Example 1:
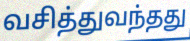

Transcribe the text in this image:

வசித்துவந்தது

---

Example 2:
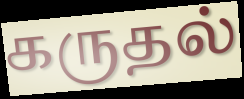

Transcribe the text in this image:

கருதல்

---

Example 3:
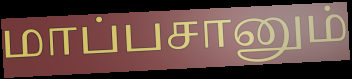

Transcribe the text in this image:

மாப்பசானும்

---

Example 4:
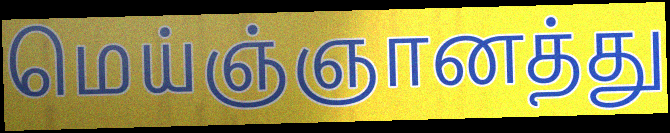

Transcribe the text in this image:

மெய்ஞ்ஞானத்து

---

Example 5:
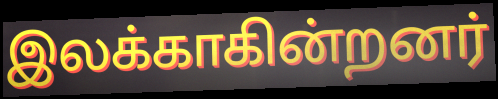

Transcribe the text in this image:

இலக்காகின்றனர்